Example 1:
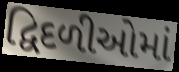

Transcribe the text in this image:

દ્વિદળીઓમાં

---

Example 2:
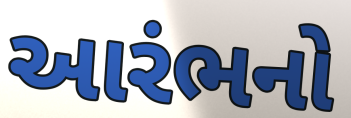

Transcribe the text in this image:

આરંભનો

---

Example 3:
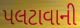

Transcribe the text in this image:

પલટાવાની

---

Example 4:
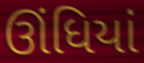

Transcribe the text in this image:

ઊંધિયાં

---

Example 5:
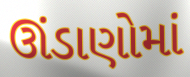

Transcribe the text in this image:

ઊંડાણોમાં